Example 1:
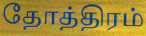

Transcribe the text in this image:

தோத்திரம்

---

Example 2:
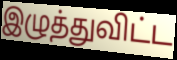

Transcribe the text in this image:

இழுத்துவிட்ட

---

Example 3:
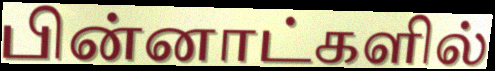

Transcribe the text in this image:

பின்னாட்களில்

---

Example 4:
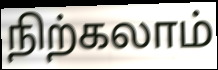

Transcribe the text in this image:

நிற்கலாம்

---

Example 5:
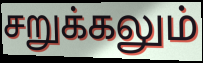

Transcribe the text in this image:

சறுக்கலும்